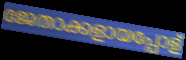
ജേതാക്കളായപ്പോള്